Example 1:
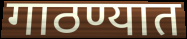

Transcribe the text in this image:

गाठण्यात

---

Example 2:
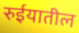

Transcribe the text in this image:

रुईयातील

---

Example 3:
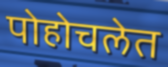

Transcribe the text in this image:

पोहोचलेत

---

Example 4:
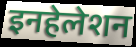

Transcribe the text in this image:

इनहेलेशन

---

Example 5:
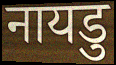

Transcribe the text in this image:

नायडु